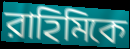
রাহিমিকে